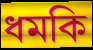
ধমকি